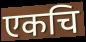
एकचि